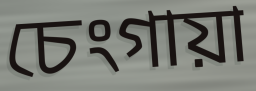
চেংগায়া